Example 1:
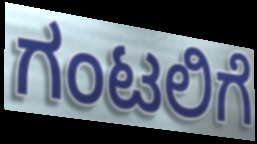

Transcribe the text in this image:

ಗಂಟಲಿಗೆ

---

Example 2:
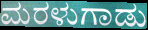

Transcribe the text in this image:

ಮರಳುಗಾಡು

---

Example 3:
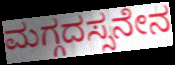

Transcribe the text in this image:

ಮಗ್ಗದಸ್ಸನೇನ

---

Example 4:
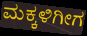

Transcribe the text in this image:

ಮಕ್ಕಳಿಗೀಗ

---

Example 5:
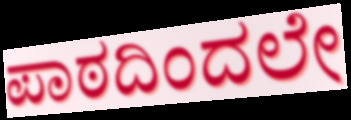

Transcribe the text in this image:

ಪಾಠದಿಂದಲೇ